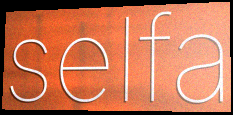
selfa